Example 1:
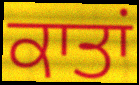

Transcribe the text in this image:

ਕਾਤਾਂ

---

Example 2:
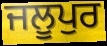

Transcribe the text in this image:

ਜਲੂਪੁਰ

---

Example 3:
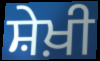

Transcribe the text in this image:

ਸ਼ੇਖ਼ੀ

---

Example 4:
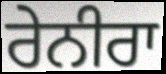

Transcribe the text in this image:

ਰੇਨੀਰਾ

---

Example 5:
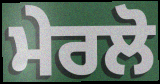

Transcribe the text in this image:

ਮੇਰਲੋ